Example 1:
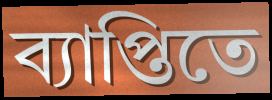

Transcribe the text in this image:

ব্যাপ্তিতে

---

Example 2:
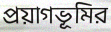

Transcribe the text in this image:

প্রয়াগভূমির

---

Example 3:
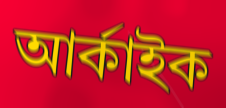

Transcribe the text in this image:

আর্কাইক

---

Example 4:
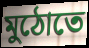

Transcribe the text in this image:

মুঠোতে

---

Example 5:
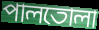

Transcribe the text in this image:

পালতোলা